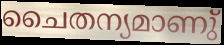
ചൈതന്യമാണു്